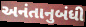
અનંતાનુબંધી